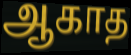
ஆகாத